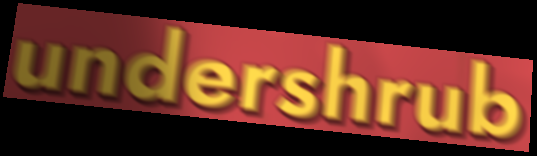
undershrub